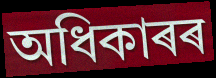
অধিকাৰৰ